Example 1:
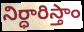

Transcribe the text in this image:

నిర్ధారిస్తాం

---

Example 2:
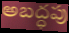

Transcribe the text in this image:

అబద్ధపు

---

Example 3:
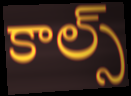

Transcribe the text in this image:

కాల్స్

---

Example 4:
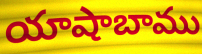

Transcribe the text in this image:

యాషాబాము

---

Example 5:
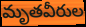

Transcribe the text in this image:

మృతవీరుల